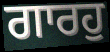
ਗਾਰਹੁ